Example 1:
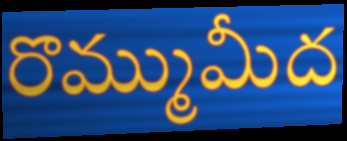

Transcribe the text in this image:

రొమ్ముమీద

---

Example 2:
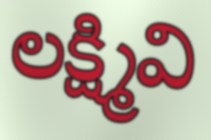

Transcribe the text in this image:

లక్ష్మివి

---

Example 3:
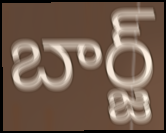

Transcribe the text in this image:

బార్జ్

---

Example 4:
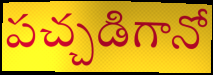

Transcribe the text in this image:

పచ్చడిగానో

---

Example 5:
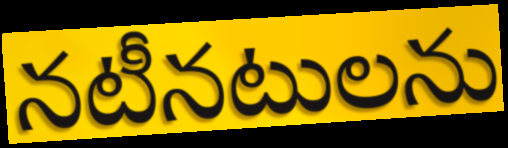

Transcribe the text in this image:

నటీనటులను